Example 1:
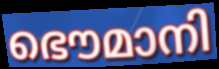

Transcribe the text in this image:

ഭൌമാനി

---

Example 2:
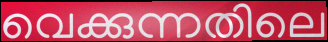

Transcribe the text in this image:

വെക്കുന്നതിലെ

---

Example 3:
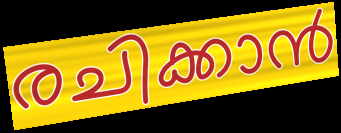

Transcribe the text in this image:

രചിക്കാൻ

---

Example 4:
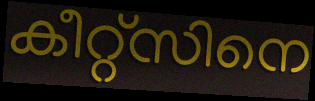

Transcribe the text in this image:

കീറ്റ്സിനെ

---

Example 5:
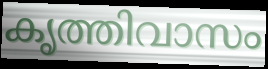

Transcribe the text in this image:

കൃത്തിവാസം